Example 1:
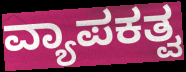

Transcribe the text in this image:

ವ್ಯಾಪಕತ್ವ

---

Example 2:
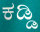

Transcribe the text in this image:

ಕಡ್ಡಿ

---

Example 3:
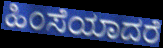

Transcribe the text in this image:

ಹಿಂಸೆಯಾದರೆ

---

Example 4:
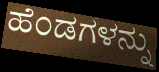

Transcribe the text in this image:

ಹೆಂಡಗಳನ್ನು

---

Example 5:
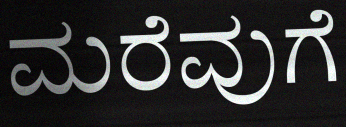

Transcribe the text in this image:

ಮರೆವುಗೆ